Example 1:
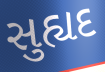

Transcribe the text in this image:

સુહ્યદ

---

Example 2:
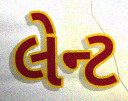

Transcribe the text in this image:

લેન્ટ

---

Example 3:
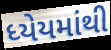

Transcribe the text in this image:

ધ્યેયમાંથી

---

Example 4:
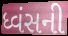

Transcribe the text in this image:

ધ્વંસની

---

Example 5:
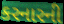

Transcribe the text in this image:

કરનારની